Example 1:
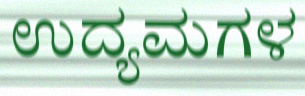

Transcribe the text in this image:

ಉದ್ಯಮಗಳ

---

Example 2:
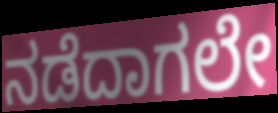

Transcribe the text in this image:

ನಡೆದಾಗಲೇ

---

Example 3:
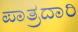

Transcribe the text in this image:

ಪಾತ್ರದಾರಿ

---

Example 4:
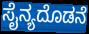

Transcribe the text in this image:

ಸೈನ್ಯದೊಡನೆ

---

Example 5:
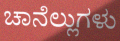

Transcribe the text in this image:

ಚಾನೆಲ್ಲುಗಳು